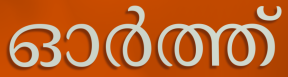
ഓർത്ത്